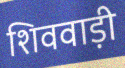
शिववाड़ी